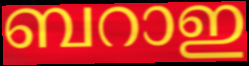
ബറാഇ